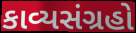
કાવ્યસંગ્રહો